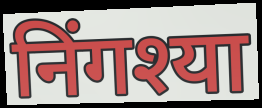
निंगश्या